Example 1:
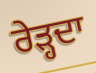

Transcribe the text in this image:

ਰੇੜ੍ਹਦਾ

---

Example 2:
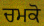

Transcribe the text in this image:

ਚਮਕੋ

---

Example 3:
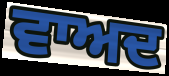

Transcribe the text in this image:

ਵਾਅਦ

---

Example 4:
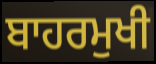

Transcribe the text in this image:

ਬਾਹਰਮੁਖੀ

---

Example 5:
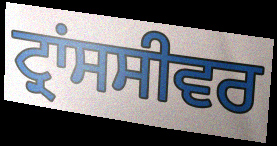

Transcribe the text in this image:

ਟ੍ਰਾਂਸਸੀਵਰ